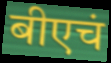
बीएचं